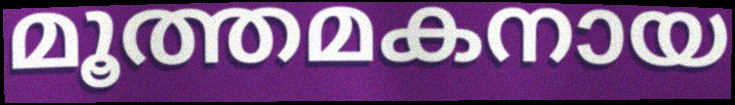
മൂത്തമകനായ